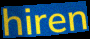
hiren